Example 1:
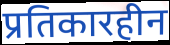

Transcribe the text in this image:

प्रतिकारहीन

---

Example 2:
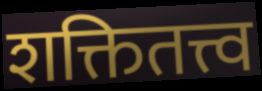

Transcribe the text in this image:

शक्तितत्त्व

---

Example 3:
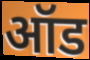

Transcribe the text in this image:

ऑड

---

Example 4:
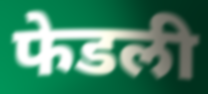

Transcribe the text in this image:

फेडली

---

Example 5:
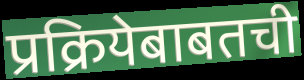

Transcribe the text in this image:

प्रक्रियेबाबतची